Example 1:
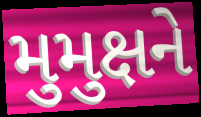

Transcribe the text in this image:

મુમુક્ષને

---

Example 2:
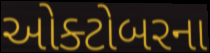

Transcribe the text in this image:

ઓક્ટોબરના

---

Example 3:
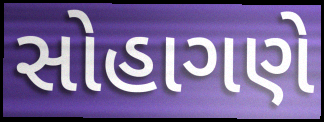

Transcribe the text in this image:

સોહાગણે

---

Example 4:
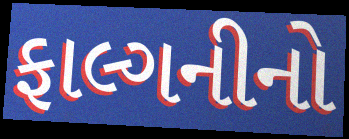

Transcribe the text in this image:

ફાલ્ગનીનો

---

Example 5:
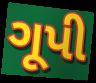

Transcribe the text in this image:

ગૂપી